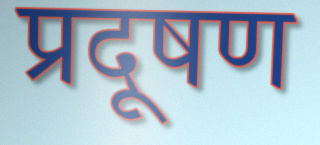
प्रदूषण